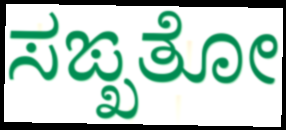
ಸಙ್ಖತೋ